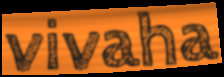
vivaha